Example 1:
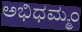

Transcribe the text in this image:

ಅಭಿಧಮ್ಮಂ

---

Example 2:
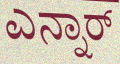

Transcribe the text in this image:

ಎನ್ನಾರ್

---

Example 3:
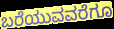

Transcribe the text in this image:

ಬರೆಯುವವರೆಗೂ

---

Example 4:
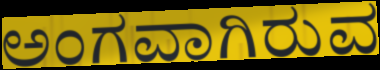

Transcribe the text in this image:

ಅಂಗವಾಗಿರುವ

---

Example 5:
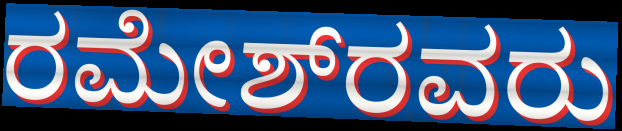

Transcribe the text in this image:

ರಮೇಶ್‌ರವರು